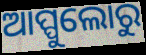
ଆପ୍ପୁଲୋରୁ